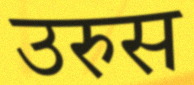
उरुस